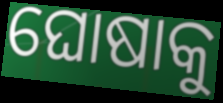
ଘୋଷାକୁ